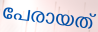
പേരായത്